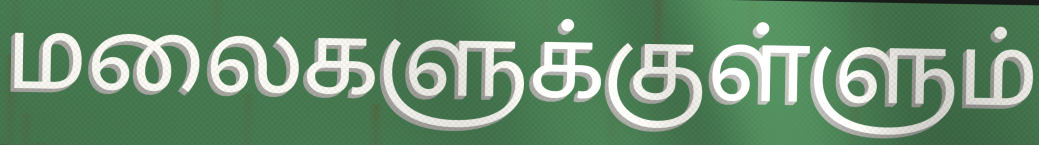
மலைகளுக்குள்ளும்